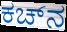
ಕಚ್‌ನ